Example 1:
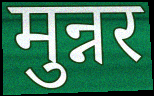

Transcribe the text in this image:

मुन्नर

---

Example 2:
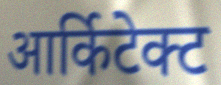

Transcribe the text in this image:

आर्किटेक्ट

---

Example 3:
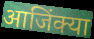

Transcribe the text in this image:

आजिंक्या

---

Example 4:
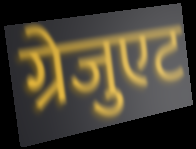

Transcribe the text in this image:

ग्रेजुएट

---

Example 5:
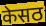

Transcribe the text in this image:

केसठ